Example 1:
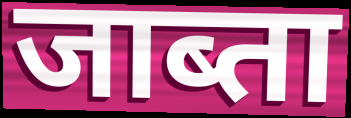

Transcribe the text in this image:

जाब्ता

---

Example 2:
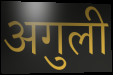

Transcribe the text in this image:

अगुली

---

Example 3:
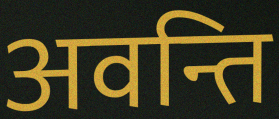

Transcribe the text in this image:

अवन्ति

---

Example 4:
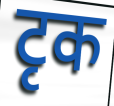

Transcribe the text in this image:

टृक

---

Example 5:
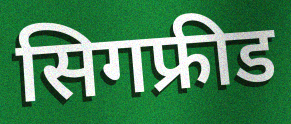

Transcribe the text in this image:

सिगफ्रीड